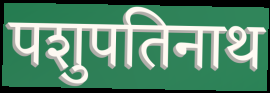
पशुपतिनाथ